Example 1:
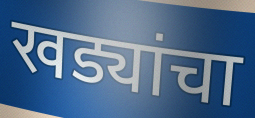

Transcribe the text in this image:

खड्यांचा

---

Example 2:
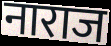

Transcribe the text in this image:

नाराज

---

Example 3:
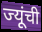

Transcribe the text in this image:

ज्यूंची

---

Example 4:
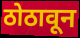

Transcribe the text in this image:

ठोठावून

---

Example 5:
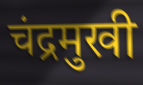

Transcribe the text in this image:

चंद्रमुखी